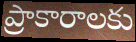
ప్రాకారాలకు